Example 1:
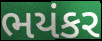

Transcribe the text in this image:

ભયંકર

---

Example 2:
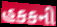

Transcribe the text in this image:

હકકની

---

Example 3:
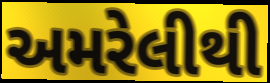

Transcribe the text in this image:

અમરેલીથી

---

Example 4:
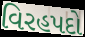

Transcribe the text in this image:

વિરહપદો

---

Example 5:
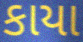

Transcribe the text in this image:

કાયા